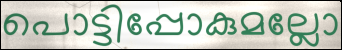
പൊട്ടിപ്പോകുമല്ലോ